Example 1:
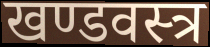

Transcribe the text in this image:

खण्डवस्त्र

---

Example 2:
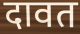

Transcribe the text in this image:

दावत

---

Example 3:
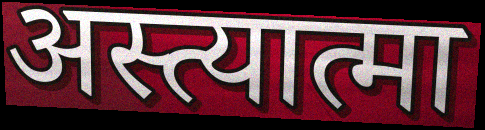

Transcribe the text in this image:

अस्त्यात्मा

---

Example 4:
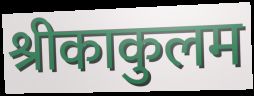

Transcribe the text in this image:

श्रीकाकुलम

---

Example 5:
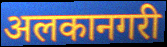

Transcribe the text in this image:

अलकानगरी